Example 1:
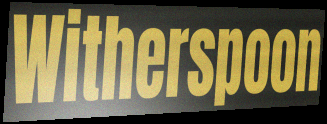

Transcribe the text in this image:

Witherspoon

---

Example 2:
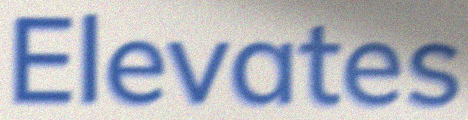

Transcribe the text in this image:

Elevates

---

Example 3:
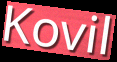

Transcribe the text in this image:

Kovil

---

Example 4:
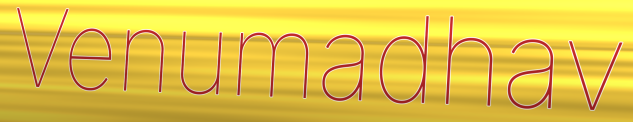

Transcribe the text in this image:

Venumadhav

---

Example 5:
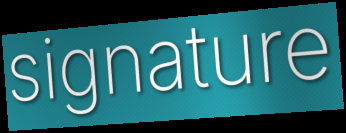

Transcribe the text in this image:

signature